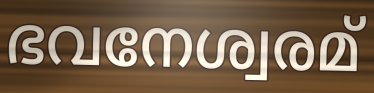
ഭവനേശ്വരമ്